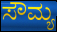
ಸೌಮ್ಯ